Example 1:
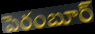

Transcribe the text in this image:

పెరంబూర్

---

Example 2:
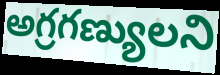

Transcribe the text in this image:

అగ్రగణ్యులని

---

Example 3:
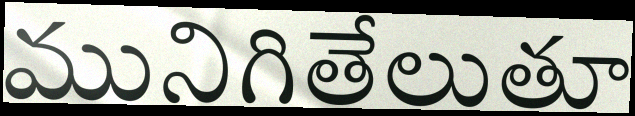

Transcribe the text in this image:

మునిగితేలుతూ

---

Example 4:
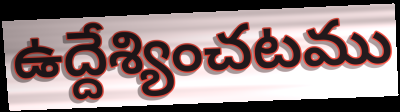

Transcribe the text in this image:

ఉద్దేశ్యించటము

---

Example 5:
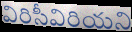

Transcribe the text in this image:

విరిసీవిరియని